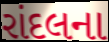
રાંદલના